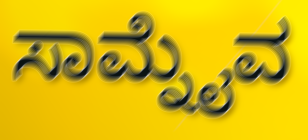
ಸಾಮ್ನೈವ